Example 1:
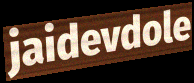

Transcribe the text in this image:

jaidevdole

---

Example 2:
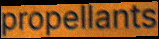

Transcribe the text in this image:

propellants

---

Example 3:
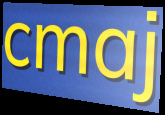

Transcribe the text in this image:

cmaj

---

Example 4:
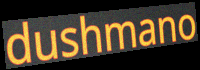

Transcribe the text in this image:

dushmano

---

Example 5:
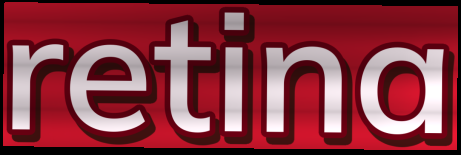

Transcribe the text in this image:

retina